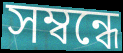
সম্বন্ধে